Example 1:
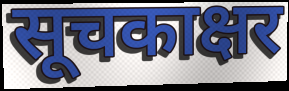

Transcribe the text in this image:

सूचकाक्षर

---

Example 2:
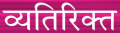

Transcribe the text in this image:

व्यतिरिक्त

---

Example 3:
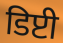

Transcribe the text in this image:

डिप्टी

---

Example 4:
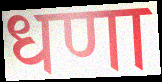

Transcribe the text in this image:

धणा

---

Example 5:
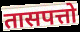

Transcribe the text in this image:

तासपत्तो